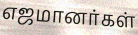
எஜமானர்கள்